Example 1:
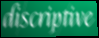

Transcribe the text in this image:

discriptive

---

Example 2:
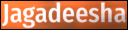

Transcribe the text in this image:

Jagadeesha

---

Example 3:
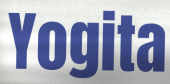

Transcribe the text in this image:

Yogita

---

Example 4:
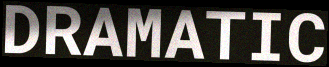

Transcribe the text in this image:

DRAMATIC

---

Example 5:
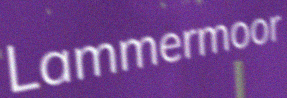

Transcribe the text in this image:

Lammermoor